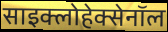
साइक्लोहेक्सेनॉल